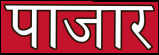
पाजार